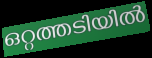
ഒറ്റത്തടിയിൽ